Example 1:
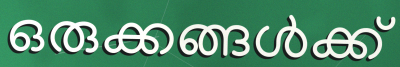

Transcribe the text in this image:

ഒരുക്കങ്ങൾക്ക്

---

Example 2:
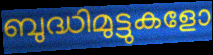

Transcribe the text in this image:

ബുദ്ധിമുട്ടുകളോ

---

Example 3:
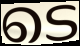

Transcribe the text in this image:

ടെ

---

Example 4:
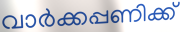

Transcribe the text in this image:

വാർക്കപ്പണിക്ക്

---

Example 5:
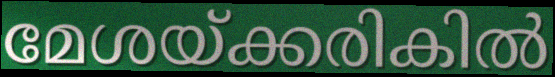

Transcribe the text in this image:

മേശയ്ക്കരികിൽ